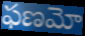
ఫణమో